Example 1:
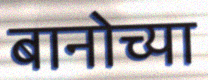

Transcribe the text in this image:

बानोच्या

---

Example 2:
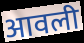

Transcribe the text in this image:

आवली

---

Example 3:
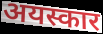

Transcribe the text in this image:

अयस्कार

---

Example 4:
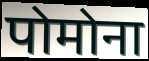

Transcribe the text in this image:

पोमोना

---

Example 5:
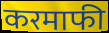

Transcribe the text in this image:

करमाफी